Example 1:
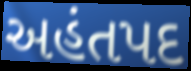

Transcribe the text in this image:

અહંતપદ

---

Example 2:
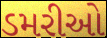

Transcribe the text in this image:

ડમરીઓ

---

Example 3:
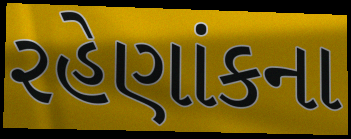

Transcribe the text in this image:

રહેણાંકના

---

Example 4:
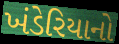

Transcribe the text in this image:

ખંડેરિયાનો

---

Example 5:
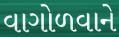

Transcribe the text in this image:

વાગોળવાને